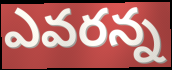
ఎవరన్న